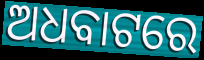
ଅଧବାଟରେ